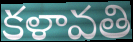
కళావతి